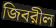
জিবরীল